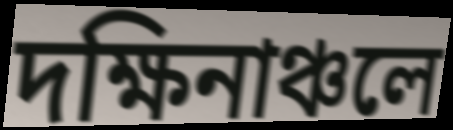
দক্ষিনাঞ্চলে